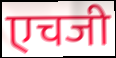
एचजी